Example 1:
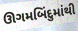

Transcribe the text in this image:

ઊગમબિંદુમાંથી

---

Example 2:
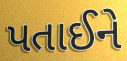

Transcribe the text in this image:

પતાઈને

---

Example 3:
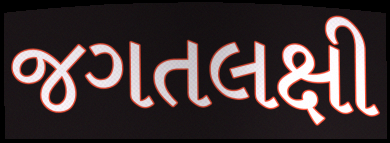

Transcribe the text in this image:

જગતલક્ષી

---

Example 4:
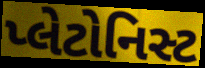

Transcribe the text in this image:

પ્લેટોનિસ્ટ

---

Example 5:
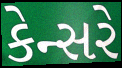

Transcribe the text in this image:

કેન્સરે